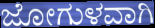
ಜೋಗುಳವಾಗಿ